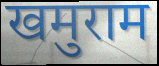
खमुराम